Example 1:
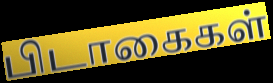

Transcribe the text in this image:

பிடாகைகள்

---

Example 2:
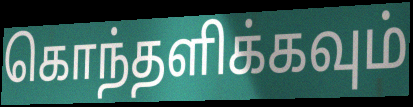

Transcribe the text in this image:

கொந்தளிக்கவும்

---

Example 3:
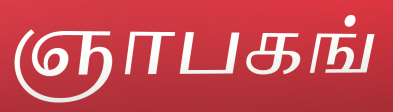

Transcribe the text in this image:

ஞாபகங்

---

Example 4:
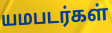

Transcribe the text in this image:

யமபடர்கள்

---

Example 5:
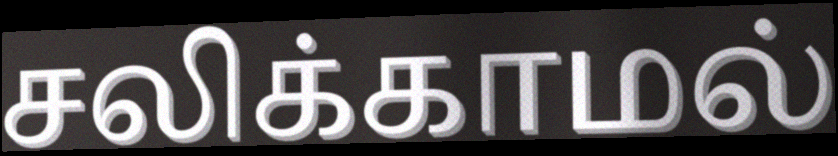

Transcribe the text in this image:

சலிக்காமல்